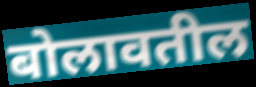
बोलावतील